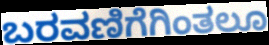
ಬರವಣಿಗೆಗಿಂತಲೂ